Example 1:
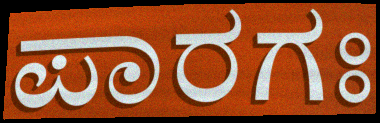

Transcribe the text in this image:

ಪಾರಗಃ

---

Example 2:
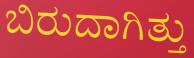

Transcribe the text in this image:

ಬಿರುದಾಗಿತ್ತು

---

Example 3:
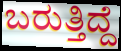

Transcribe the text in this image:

ಬರುತ್ತಿದ್ದೆ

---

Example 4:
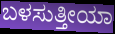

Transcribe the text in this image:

ಬಳಸುತ್ತೀಯಾ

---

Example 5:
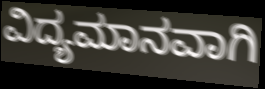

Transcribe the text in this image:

ವಿದ್ಯಮಾನವಾಗಿ